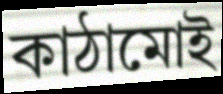
কাঠামোই